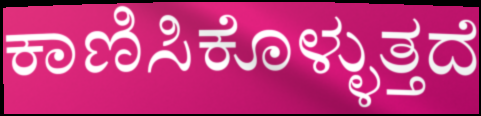
ಕಾಣಿಸಿಕೊಳ್ಳುತ್ತದೆ